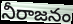
నీరాజనం